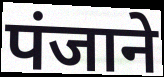
पंजाने